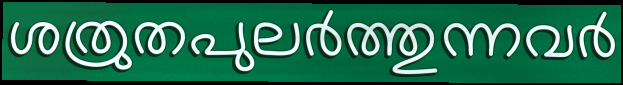
ശത്രുതപുലർത്തുന്നവർ